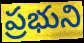
ప్రభుని